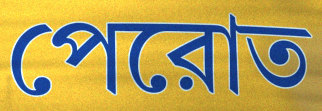
পেরোত